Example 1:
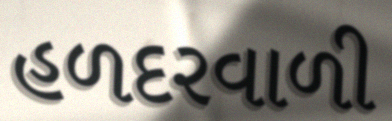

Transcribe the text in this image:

હળદરવાળી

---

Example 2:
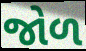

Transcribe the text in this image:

જોળ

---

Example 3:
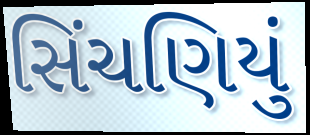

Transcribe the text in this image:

સિંચણિયું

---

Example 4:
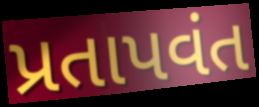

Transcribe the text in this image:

પ્રતાપવંત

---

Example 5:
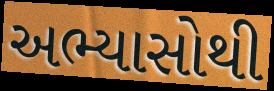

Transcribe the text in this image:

અભ્યાસોથી